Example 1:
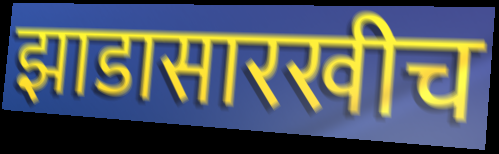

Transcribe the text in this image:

झाडासारखीच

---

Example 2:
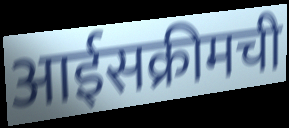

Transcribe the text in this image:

आईसक्रीमची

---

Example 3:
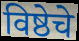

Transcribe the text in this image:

विष्ठेचे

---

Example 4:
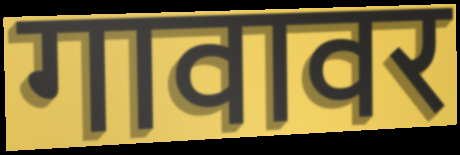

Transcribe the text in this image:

गावावर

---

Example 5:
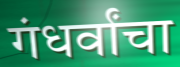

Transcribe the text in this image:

गंधर्वांचा